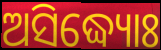
ଅସିଦ୍ଧ୍ୟୋଃ